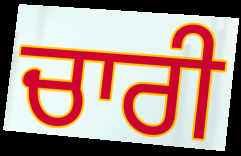
ਚਾਰੀ